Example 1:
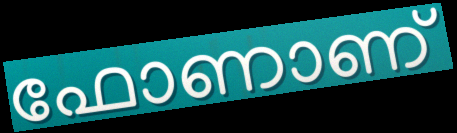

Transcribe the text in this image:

ഫോണാണ്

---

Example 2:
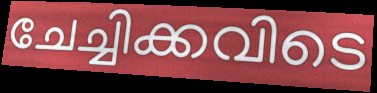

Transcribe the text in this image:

ചേച്ചിക്കവിടെ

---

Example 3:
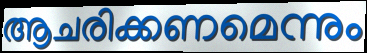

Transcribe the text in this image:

ആചരിക്കണമെന്നും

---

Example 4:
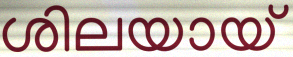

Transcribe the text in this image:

ശിലയായ്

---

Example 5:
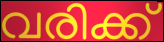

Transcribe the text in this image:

വരിക്ക്